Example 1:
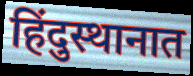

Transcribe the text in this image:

हिंदुस्थानात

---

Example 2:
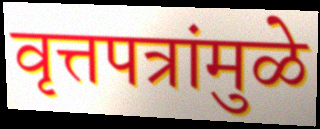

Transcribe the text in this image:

वृत्तपत्रांमुळे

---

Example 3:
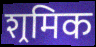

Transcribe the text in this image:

श्रमिक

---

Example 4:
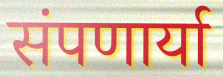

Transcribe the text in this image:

संपणार्या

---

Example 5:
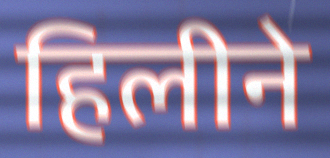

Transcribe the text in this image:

हिलीने